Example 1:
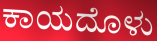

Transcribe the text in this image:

ಕಾಯದೊಳು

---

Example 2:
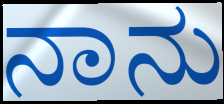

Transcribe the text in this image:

ನಾನು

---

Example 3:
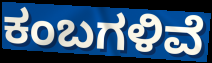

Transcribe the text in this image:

ಕಂಬಗಳಿವೆ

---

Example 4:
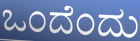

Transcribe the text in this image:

ಒಂದೆಂದು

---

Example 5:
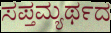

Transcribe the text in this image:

ಸಪ್ತಮ್ಯರ್ಥದ